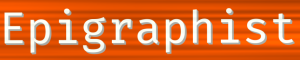
Epigraphist